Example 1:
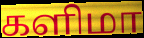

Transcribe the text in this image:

களிமா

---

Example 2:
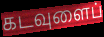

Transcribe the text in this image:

கடவுளைப்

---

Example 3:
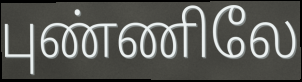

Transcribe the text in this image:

புண்ணிலே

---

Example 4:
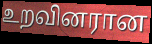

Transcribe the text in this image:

உறவினரான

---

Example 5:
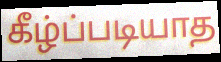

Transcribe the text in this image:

கீழ்ப்படியாத